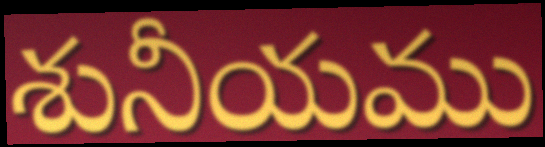
శునీయము